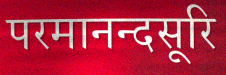
परमानन्दसूरि